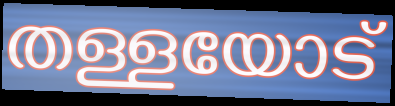
തള്ളയോട്